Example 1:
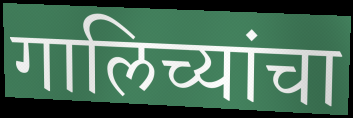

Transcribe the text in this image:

गालिच्यांचा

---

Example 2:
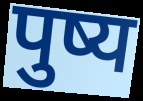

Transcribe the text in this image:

पुष्य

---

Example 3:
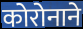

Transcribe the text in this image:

कोरोनाने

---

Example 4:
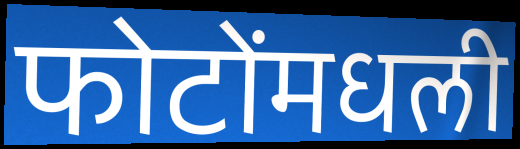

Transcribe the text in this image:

फोटोंमधली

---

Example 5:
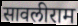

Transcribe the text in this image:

सावलीराम